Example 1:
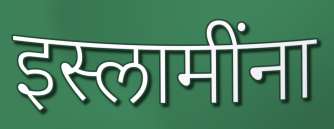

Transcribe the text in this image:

इस्लामींना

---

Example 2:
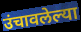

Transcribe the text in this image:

उंचावलेल्या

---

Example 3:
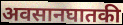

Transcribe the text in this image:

अवसानघातकी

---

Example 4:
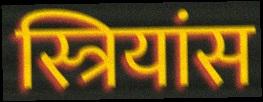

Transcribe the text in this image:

स्त्रियांस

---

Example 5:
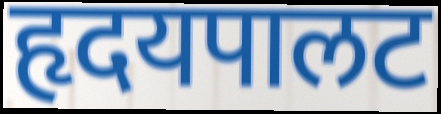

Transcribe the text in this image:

हृदयपालट